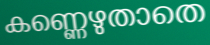
കണ്ണെഴുതാതെ